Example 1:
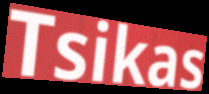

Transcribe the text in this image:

Tsikas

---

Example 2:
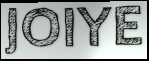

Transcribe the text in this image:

JOIYE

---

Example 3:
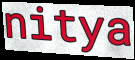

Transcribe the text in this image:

nitya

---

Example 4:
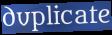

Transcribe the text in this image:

duplicate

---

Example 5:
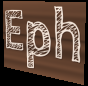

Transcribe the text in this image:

Eph